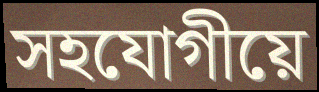
সহযোগীয়ে